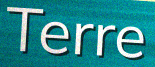
Terre